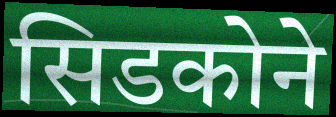
सिडकोने